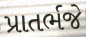
પ્રાતર્ભજે